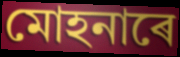
মোহনাৰে